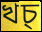
খচ্